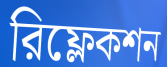
রিফ্লেকশন